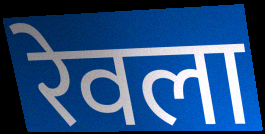
रेवला